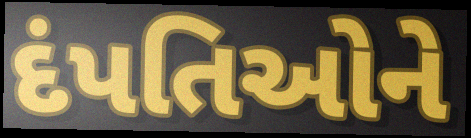
દંપતિઓને